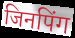
जिनपिंग